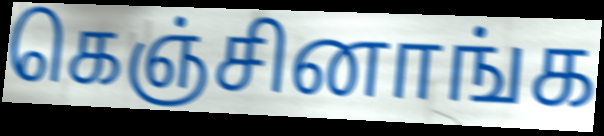
கெஞ்சினாங்க